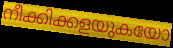
നീക്കിക്കളയുകയോ